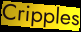
Cripples